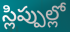
స్లిప్పుల్లో